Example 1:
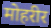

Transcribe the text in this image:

मोहरीर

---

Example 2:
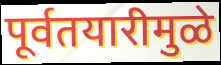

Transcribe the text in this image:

पूर्वतयारीमुळे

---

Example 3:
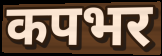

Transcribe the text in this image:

कपभर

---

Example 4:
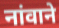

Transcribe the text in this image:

नांवाने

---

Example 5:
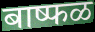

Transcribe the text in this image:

बाष्फळ